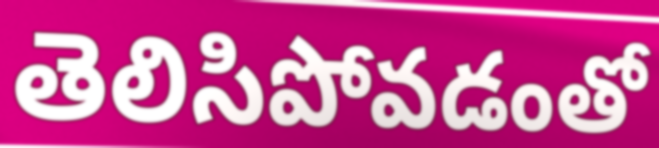
తెలిసిపోవడంతో